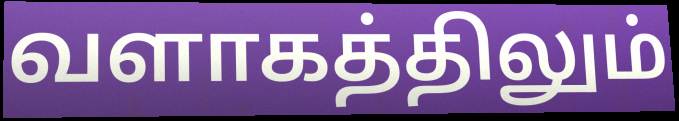
வளாகத்திலும்